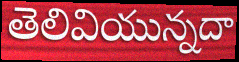
తెలివియున్నదా